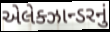
એલેક્ઝાન્ડરનું